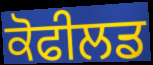
ਕੋਫੀਲਡ